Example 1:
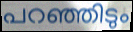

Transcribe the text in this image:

പറഞ്ഞിടും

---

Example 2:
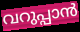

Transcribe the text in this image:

വറുപ്പാൻ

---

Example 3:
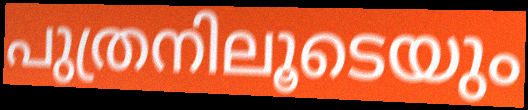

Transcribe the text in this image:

പുത്രനിലൂടെയും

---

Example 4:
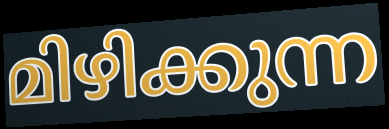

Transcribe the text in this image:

മിഴിക്കുന്ന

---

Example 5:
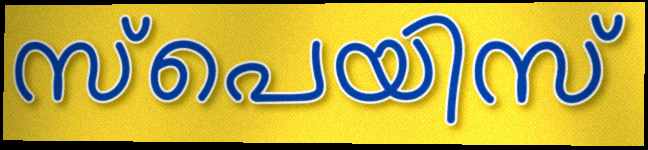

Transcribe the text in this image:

സ്പെയിസ്